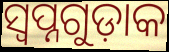
ସ୍ୱପ୍ନଗୁଡ଼ାକ